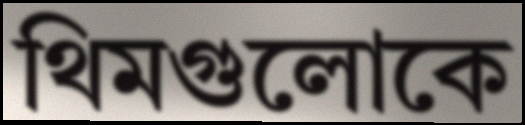
থিমগুলোকে